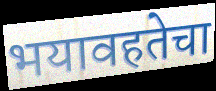
भयावहतेचा